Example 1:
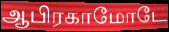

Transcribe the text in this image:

ஆபிரகாமோடே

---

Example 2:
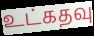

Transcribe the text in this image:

உட்கதவு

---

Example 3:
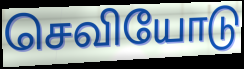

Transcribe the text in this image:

செவியோடு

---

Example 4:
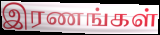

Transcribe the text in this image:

இரணங்கள்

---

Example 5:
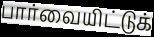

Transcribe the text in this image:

பார்வையிட்டுக்